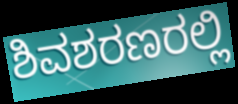
ಶಿವಶರಣರಲ್ಲಿ